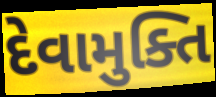
દેવામુક્તિ